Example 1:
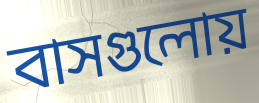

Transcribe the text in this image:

বাসগুলোয়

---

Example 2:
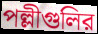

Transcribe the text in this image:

পল্লীগুলির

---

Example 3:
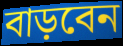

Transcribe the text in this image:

বাড়বেন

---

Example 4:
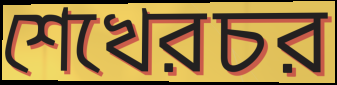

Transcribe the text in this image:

শেখেরচর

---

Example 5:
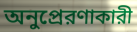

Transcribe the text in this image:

অনুপ্রেরণাকারী